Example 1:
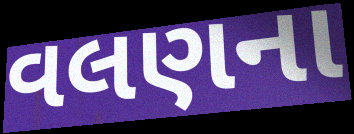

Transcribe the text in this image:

વલણના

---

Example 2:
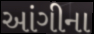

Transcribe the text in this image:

આંગીના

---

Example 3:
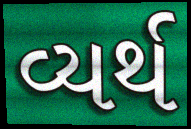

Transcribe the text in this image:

વ્યર્થ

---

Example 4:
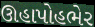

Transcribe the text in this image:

ઊહાપોહભેર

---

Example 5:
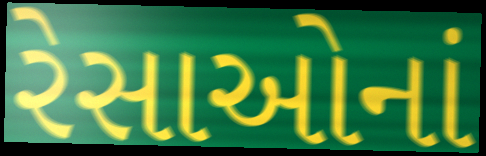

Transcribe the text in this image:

રેસાઓનાં